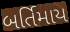
બર્તિમાય